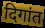
दिगांत